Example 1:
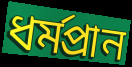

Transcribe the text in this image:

ধর্মপ্রান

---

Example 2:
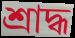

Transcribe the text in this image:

শ্রাদ্ধ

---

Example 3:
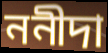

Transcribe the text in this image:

ননীদা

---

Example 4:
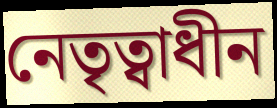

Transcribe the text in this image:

নেতৃত্বাধীন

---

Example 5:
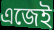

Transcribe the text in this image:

এজেই